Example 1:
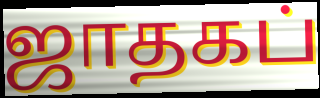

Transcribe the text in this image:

ஜாதகப்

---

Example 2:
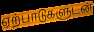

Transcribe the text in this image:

ஏற்பாடுகளுடன்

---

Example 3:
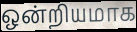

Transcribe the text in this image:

ஒன்றியமாக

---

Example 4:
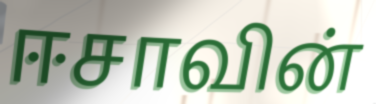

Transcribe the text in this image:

ஈசாவின்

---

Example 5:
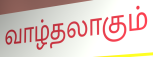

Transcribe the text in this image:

வாழ்தலாகும்